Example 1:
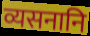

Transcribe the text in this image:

व्यसनानि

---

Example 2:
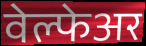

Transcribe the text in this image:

वेल्फेअर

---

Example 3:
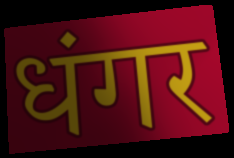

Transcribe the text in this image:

धंगर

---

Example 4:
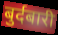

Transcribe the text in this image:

बुर्दबारी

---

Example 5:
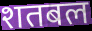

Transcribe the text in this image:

शतबल